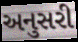
અનુસરી